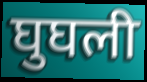
घुघली